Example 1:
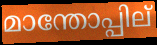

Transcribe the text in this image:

മാന്തോപ്പില്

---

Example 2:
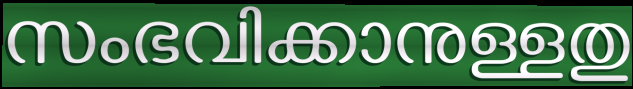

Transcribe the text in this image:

സംഭവിക്കാനുള്ളതു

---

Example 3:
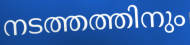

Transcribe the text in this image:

നടത്തത്തിനും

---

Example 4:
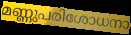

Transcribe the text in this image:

മണ്ണുപരിശോധനാ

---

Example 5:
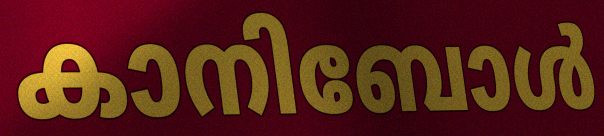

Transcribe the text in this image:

കാനിബോൾ